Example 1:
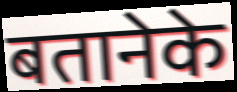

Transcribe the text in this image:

बतानेके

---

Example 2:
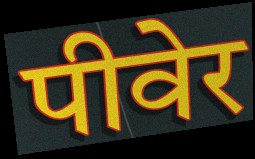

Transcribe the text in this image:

पीवेर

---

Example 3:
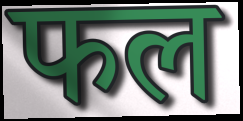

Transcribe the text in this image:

फल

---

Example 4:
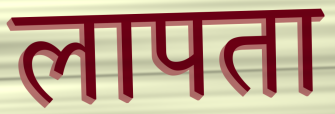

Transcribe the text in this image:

लापता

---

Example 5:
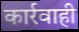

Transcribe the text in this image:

कार्रवाही